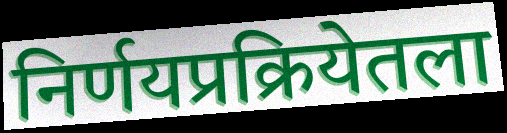
निर्णयप्रक्रियेतला